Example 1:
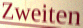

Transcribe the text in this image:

Zweiten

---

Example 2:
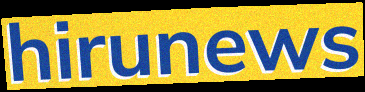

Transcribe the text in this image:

hirunews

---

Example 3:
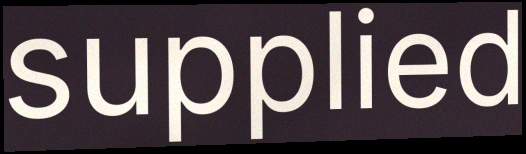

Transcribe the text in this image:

supplied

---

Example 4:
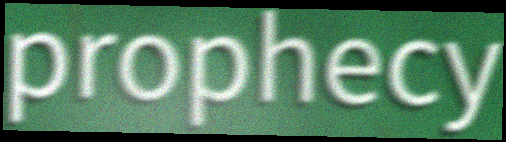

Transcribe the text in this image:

prophecy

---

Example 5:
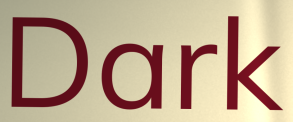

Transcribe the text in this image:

Dark